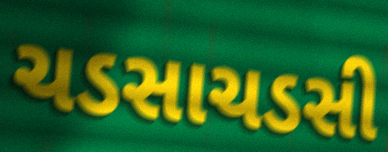
ચડસાચડસી